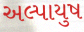
અલ્પાયુષ